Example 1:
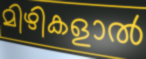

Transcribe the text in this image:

മിഴികളാൽ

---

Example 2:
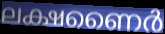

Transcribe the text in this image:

ലക്ഷണൈർ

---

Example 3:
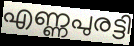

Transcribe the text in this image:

എണ്ണപുരട്ടി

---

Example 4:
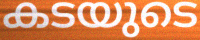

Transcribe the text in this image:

കടയുടെ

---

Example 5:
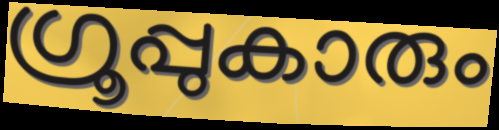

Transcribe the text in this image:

ഗ്രൂപ്പുകാരും